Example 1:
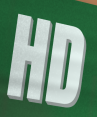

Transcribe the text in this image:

HD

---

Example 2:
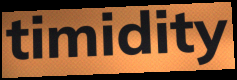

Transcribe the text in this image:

timidity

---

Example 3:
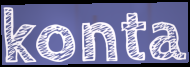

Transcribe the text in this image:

konta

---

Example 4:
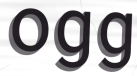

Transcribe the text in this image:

ogg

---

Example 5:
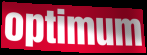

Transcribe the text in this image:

optimum